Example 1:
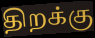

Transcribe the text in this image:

திறக்கு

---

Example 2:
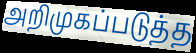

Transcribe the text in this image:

அறிமுகப்படுத்த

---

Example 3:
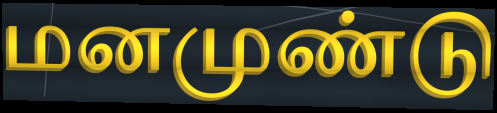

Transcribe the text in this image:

மனமுண்டு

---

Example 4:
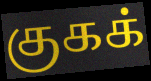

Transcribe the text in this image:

குகக்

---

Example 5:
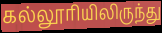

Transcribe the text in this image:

கல்லூரியிலிருந்து